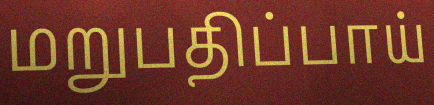
மறுபதிப்பாய்